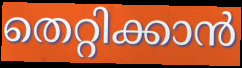
തെറ്റിക്കാൻ